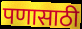
पणासाठी